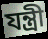
যন্ত্রী